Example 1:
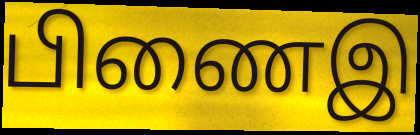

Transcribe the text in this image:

பிணைஇ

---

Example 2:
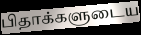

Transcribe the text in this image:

பிதாக்களுடைய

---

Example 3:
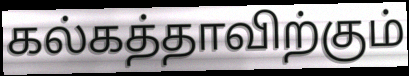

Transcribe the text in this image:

கல்கத்தாவிற்கும்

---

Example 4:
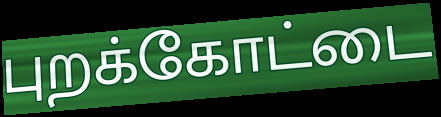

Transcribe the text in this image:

புறக்கோட்டை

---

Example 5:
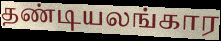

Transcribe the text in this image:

தண்டியலங்கார